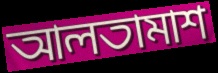
আলতামাশ